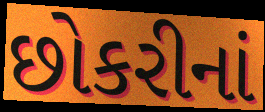
છોકરીનાં